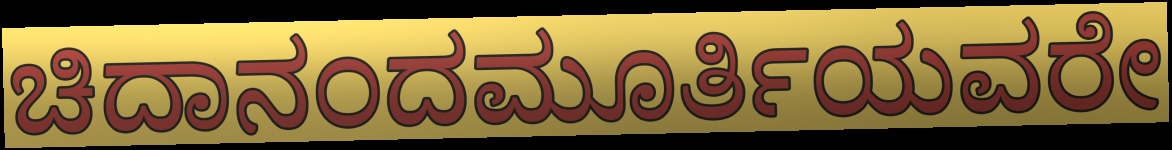
ಚಿದಾನಂದಮೂರ್ತಿಯವರೇ